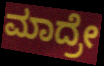
ಮಾದ್ರೇ